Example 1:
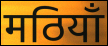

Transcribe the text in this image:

मठियाँ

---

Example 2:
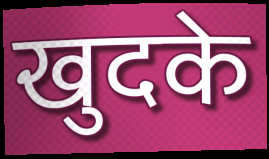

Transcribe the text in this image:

खुदके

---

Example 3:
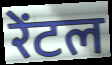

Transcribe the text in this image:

रेंटल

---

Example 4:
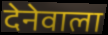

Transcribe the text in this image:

देनेवाला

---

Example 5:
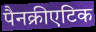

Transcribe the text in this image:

पैनक्रीएटिक